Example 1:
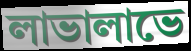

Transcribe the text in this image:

লাভালাভে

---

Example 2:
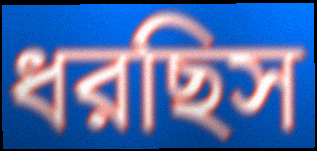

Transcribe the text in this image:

ধরছিস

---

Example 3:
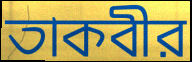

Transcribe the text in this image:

তাকবীর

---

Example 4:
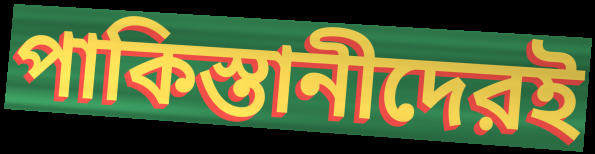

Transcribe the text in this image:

পাকিস্তানীদেরই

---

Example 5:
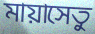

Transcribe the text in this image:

মায়াসেতু